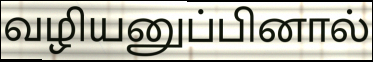
வழியனுப்பினால்